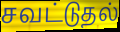
சவட்டுதல்